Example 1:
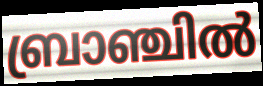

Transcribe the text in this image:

ബ്രാഞ്ചിൽ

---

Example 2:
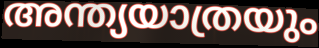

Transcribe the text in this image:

അന്ത്യയാത്രയും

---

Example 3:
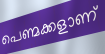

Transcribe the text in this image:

പെണ്മക്കളാണ്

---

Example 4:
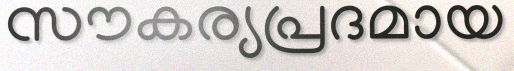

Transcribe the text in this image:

സൗകര്യപ്രദമായ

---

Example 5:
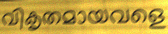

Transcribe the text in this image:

വികൃതമായവളെ